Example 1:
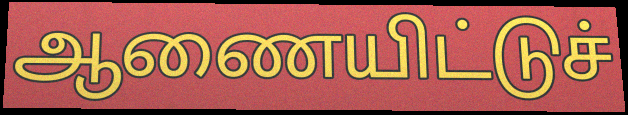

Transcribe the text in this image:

ஆணையிட்டுச்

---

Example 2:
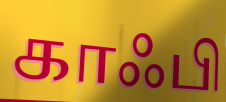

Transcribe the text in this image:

காஃபி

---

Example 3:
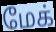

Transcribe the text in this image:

மேக்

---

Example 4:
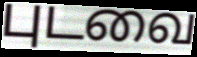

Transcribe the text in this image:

புடவை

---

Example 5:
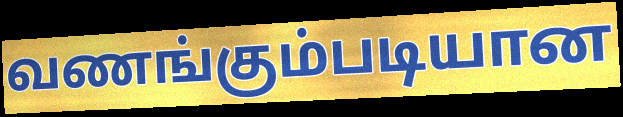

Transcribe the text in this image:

வணங்கும்படியான